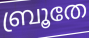
ബ്രൂതേ